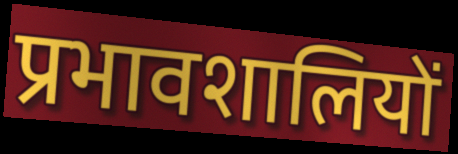
प्रभावशालियों